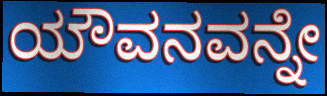
ಯೌವನವನ್ನೇ